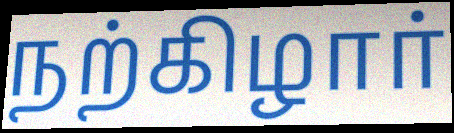
நற்கிழார்